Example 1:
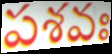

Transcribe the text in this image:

పశవః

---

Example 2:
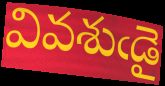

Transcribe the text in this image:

వివశుఁడై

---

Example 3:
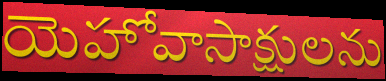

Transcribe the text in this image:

యెహోవాసాక్షులను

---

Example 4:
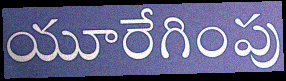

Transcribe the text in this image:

యూరేగింపు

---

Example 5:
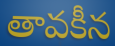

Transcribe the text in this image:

తావకీన